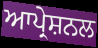
ਆਪ੍ਰੇਸ਼ਨਲ